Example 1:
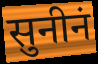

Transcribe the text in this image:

सुनीनं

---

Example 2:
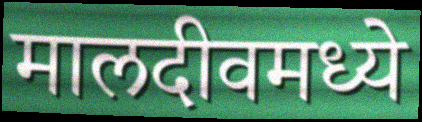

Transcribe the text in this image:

मालदीवमध्ये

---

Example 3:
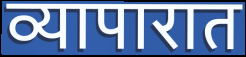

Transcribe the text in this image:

व्यापारात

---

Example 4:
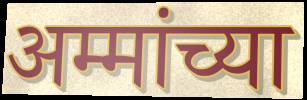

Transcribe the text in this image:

अम्मांच्या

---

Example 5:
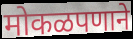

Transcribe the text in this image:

मोकळपणाने